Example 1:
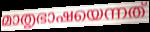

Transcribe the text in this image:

മാതൃഭാഷയെന്നത്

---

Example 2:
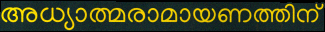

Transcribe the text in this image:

അധ്യാത്മരാമായണത്തിന്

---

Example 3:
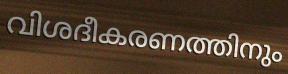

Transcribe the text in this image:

വിശദീകരണത്തിനും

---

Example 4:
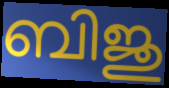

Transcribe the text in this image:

ബിജു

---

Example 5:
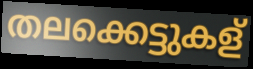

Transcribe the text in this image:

തലക്കെട്ടുകള്